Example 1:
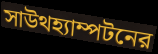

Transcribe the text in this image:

সাউথহ্যাম্পটনের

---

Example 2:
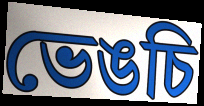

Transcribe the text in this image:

ভেঙচি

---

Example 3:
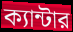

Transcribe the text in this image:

ক্যান্টার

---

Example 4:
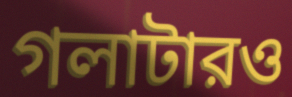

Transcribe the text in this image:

গলাটারও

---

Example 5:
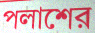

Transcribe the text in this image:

পলাশের